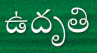
ఉదృతి